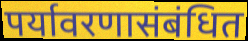
पर्यावरणासंबंधित